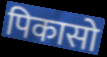
पिकासो